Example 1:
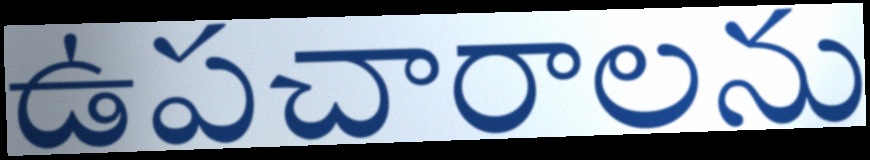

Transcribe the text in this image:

ఉపచారాలను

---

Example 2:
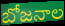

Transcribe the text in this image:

బోజనాల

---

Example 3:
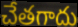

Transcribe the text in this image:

చేతగాదు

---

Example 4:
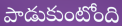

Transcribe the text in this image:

పాడుకుంటోంది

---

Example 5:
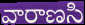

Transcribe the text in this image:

వారాణసి